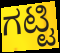
ಗಟ್ಟಿ